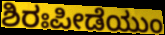
ಶಿರಃಪೀಡೆಯುಂ